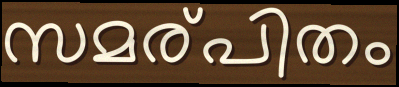
സമര്പിതം